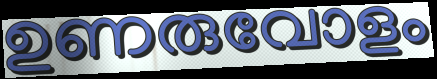
ഉണരുവോളം